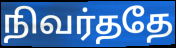
நிவர்ததே